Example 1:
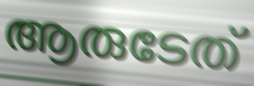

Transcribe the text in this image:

ആരുടേത്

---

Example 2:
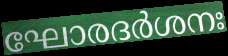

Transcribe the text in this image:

ഘോരദർശനഃ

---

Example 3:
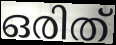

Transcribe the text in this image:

ഒരിത്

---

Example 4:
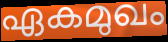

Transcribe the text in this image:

ഏകമുഖം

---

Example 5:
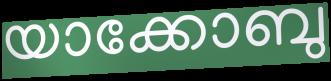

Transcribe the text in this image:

യാക്കോബു